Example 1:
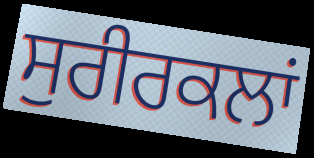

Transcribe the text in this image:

ਸੁਰੀਰਕਲਾਂ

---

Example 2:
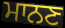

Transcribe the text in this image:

ਮਾਨਣ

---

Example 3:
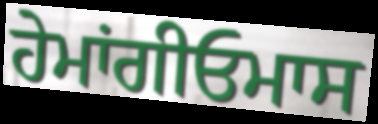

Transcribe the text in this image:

ਹੇਮਾਂਗੀਓਮਾਸ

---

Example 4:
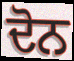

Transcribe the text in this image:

ਦੋਨ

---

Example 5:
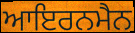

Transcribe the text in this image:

ਆਇਰਨਮੈਨ